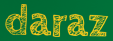
daraz